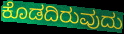
ಕೊಡದಿರುವುದು